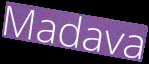
Madava